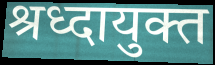
श्रध्दायुक्त